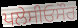
ਪਲੇਸੀਓਸੌਰ